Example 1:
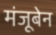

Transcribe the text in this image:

मंजूबेन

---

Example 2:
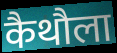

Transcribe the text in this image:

कैथौला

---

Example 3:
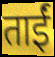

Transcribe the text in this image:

ताईं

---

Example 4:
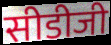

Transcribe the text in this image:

सीडीजी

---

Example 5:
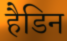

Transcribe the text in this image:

हैडिन